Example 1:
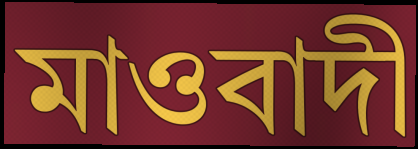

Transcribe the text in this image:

মাওবাদী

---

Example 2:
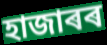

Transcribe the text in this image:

হাজাৰৰ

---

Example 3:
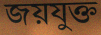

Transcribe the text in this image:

জয়যুক্ত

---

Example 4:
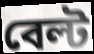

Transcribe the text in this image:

বেল্ট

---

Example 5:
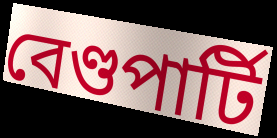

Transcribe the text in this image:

বেণ্ডপাৰ্টি